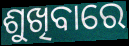
ଶୁଖିବାରେ